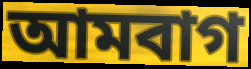
আমবাগ